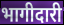
भागीदारी